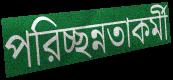
পরিচ্ছন্নতাকর্মী